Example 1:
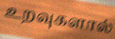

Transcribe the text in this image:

உறவுகளால்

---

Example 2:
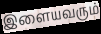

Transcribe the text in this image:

இளையவரும்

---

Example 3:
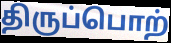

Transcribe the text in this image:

திருப்பொற்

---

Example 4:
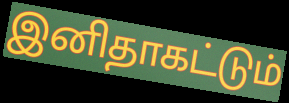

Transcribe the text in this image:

இனிதாகட்டும்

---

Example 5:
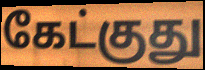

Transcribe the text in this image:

கேட்குது